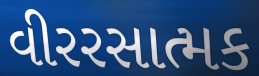
વીરરસાત્મક